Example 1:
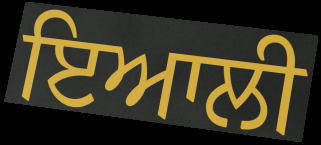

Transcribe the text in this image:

ਇਆਲੀ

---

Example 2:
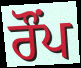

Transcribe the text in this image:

ਰੌਂਪ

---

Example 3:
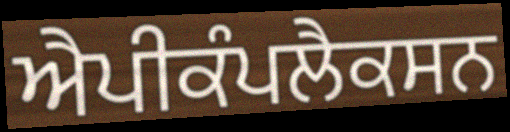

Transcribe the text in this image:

ਐਪੀਕੰਪਲੈਕਸਨ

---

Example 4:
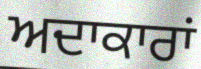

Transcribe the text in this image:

ਅਦਾਕਾਰਾਂ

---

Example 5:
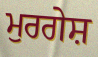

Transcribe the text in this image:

ਮੁਰਗੇਸ਼